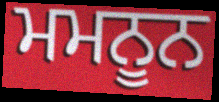
ਮਮਨੂਨ